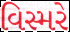
વિસ્મરે